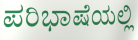
ಪರಿಭಾಷೆಯಲ್ಲಿ